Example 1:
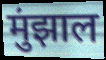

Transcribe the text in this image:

मुंझाल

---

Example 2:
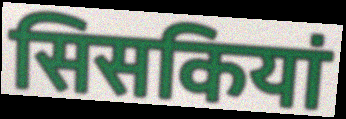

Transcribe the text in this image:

सिसकियां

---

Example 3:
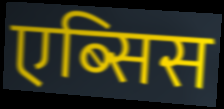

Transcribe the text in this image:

एब्सिस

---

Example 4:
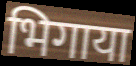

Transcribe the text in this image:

भिगाया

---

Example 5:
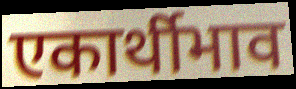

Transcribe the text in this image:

एकार्थीभाव